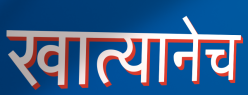
खात्यानेच